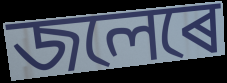
জলেৰে